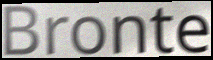
Bronte